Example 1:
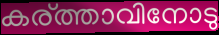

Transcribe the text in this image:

കര്ത്താവിനോടു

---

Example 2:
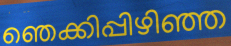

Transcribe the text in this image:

ഞെക്കിപ്പിഴിഞ്ഞ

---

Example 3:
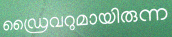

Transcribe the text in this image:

ഡ്രൈവറുമായിരുന്ന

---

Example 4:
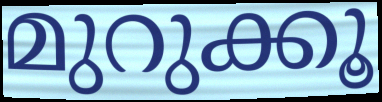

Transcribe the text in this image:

മുറുക്കൂ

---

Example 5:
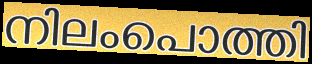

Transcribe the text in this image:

നിലംപൊത്തി